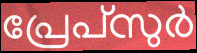
പ്രേപ്സുർ